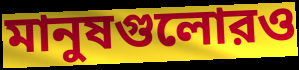
মানুষগুলোরও